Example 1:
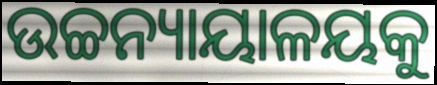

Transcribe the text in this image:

ଉଚ୍ଚନ୍ୟାୟାଳୟକୁ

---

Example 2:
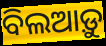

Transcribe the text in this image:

ବିଲଆଡ଼ୁ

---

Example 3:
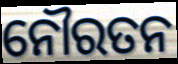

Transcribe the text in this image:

ନୌରତନ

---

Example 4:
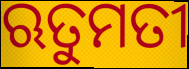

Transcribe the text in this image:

ଋତୁମତୀ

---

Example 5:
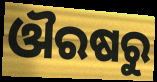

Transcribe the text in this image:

ଔରଷରୁ